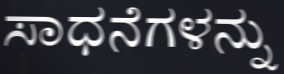
ಸಾಧನೆಗಳನ್ನು